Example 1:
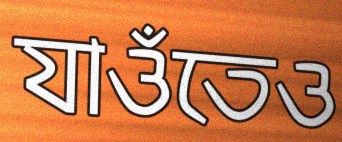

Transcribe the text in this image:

যাওঁতেও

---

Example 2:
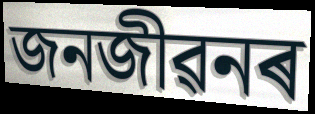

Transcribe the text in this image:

জনজীৱনৰ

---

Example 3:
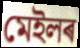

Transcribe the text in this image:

মেইলৰ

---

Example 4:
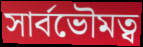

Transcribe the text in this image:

সাৰ্বভৌমত্ব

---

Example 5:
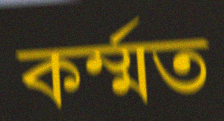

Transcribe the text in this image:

কৰ্ম্মত